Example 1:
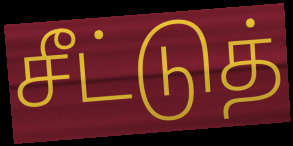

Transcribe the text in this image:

சீட்டுத்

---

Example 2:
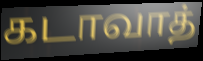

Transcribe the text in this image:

கடாவாத்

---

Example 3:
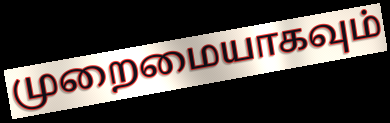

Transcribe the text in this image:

முறைமையாகவும்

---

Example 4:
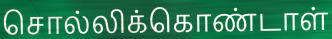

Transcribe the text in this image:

சொல்லிக்கொண்டாள்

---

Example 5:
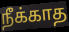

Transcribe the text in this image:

நீக்காத